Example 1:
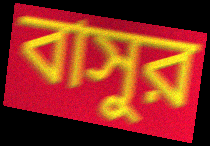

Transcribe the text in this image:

বাসুর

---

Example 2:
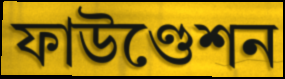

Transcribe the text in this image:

ফাউণ্ডেশন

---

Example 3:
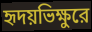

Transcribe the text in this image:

হৃদয়ভিক্ষুরে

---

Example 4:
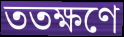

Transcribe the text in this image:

ততক্ষণে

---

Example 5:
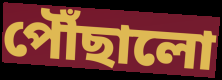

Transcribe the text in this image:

পৌঁছালো